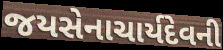
જયસેનાચાર્યદેવની